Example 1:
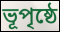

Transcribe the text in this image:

ভূপৃষ্ঠে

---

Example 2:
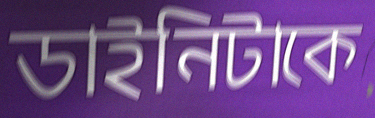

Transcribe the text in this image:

ডাইনিটাকে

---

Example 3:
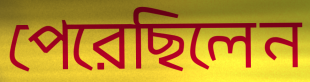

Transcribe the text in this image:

পেরেছিলেন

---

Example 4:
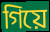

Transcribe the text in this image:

গিয়ে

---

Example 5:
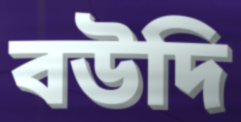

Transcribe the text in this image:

বউদি